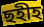
ছহীহ